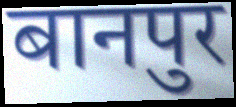
बानपुर